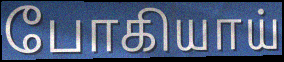
போகியாய்